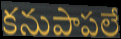
కనుపాపలే